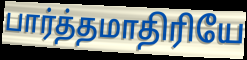
பார்த்தமாதிரியே